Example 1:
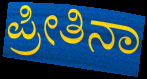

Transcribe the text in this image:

ಪ್ರೀತಿನಾ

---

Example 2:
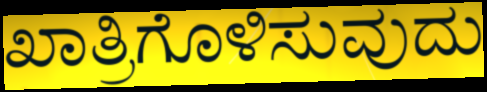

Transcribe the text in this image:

ಖಾತ್ರಿಗೊಳಿಸುವುದು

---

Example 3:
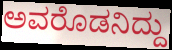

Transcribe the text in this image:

ಅವರೊಡನಿದ್ದು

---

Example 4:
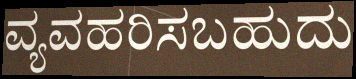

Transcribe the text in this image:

ವ್ಯವಹರಿಸಬಹುದು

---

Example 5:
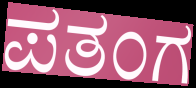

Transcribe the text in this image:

ಪತಂಗ